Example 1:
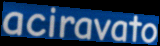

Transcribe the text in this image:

aciravato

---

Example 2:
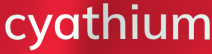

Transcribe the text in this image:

cyathium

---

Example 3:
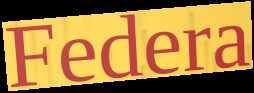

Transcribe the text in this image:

Federa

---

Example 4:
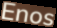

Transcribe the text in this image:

Enos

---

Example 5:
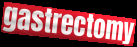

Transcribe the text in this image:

gastrectomy